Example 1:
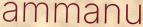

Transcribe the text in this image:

ammanu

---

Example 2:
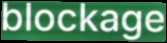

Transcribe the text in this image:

blockage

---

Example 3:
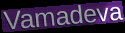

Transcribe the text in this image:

Vamadeva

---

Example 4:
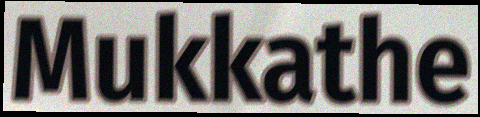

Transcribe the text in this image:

Mukkathe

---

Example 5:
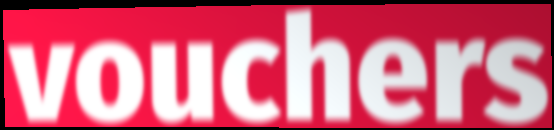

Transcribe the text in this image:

vouchers